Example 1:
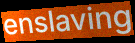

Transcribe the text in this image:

enslaving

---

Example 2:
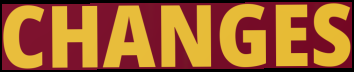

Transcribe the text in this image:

CHANGES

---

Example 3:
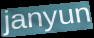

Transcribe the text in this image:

janyun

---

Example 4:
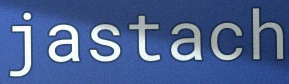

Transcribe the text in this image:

jastach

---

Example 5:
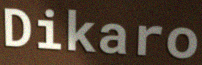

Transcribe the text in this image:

Dikaro